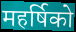
महर्षिको